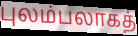
புலம்பலாகத்